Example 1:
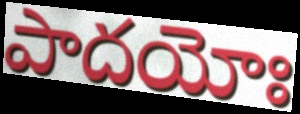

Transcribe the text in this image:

పాదయోః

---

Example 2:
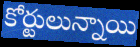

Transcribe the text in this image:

కోర్టులున్నాయి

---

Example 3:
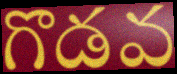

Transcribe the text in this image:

గొడవ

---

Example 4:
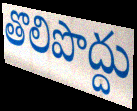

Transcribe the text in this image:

తొలిపొద్దు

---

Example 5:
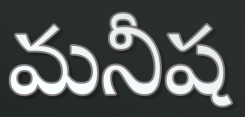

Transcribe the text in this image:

మనీష